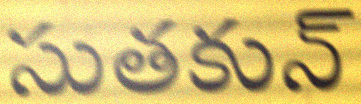
సుతకున్